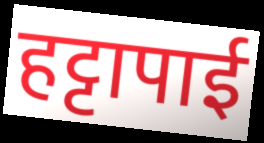
हट्टापाई